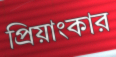
প্রিয়াংকার